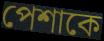
পেশাকে